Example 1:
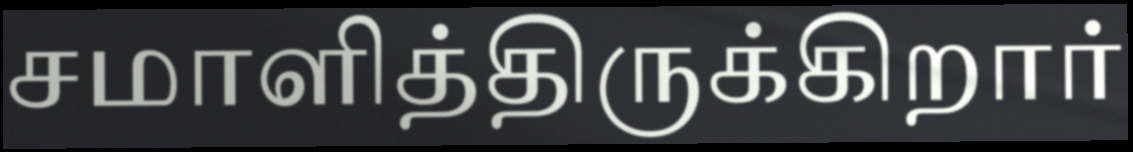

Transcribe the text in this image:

சமாளித்திருக்கிறார்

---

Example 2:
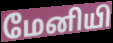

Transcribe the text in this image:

மேனியி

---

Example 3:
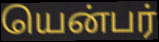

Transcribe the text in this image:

யென்பர்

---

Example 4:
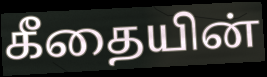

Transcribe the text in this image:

கீதையின்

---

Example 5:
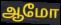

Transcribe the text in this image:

ஆமோ